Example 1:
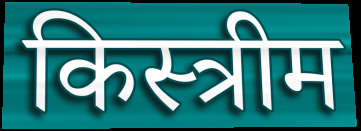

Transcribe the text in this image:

किस्त्रीम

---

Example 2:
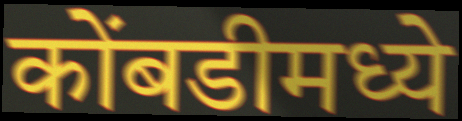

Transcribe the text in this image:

कोंबडीमध्ये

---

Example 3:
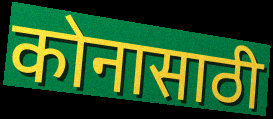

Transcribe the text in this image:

कोनासाठी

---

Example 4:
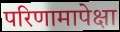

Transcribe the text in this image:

परिणामापेक्षा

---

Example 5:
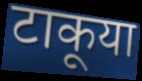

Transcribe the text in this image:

टाकूया